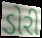
ડોરી